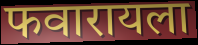
फवारायला